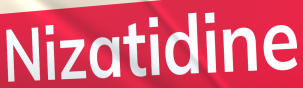
Nizatidine